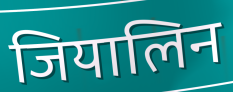
जियालिन